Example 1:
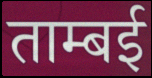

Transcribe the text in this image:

ताम्बई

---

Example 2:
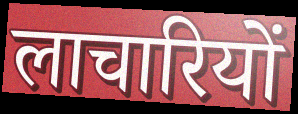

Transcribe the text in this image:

लाचारियों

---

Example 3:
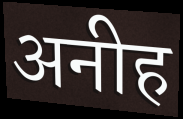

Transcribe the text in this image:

अनीह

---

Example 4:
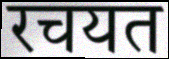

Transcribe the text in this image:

रचयत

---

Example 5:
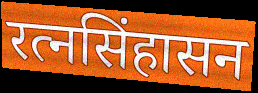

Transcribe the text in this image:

रत्नसिंहासन